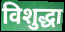
विशुद्धा